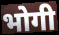
भोगी